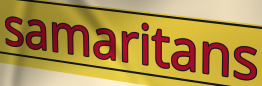
samaritans